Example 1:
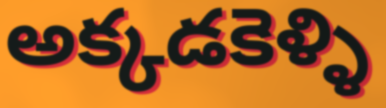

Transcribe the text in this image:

అక్కడకెళ్ళి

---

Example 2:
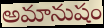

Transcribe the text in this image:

అమానుషం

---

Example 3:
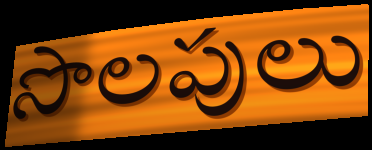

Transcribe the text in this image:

సొలపులు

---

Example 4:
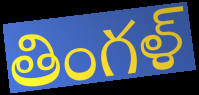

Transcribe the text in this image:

తింగళ్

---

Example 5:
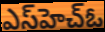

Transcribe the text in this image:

ఎస్‌హెచ్ఓ